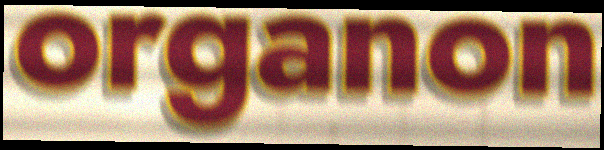
organon